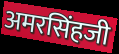
अमरसिंहजी